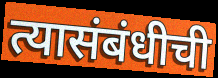
त्यासंबंधीची